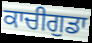
ਕਾਚੀਗੁਡਾ